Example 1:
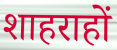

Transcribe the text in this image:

शाहराहों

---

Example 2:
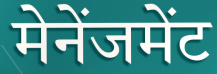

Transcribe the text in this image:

मेनेंजमेंट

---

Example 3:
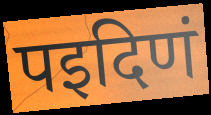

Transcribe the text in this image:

पइदिणं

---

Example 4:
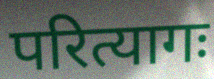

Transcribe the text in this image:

परित्यागः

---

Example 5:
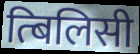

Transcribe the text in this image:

त्बिलिसी